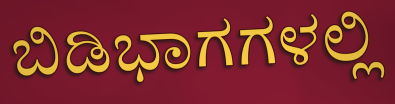
ಬಿಡಿಭಾಗಗಳಲ್ಲಿ